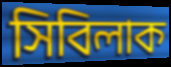
সিবিলাক